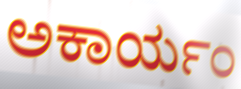
ಅಕಾರ್ಯಂ